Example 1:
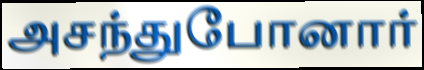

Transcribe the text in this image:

அசந்துபோனார்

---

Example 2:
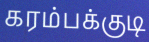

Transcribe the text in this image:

கரம்பக்குடி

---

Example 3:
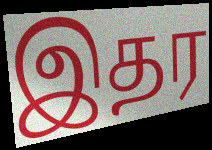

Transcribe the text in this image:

இதர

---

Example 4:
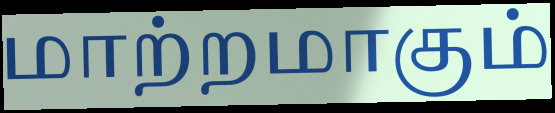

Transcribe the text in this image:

மாற்றமாகும்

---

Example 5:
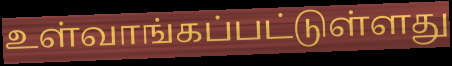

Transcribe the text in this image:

உள்வாங்கப்பட்டுள்ளது